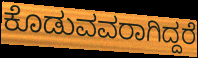
ಕೊಡುವವರಾಗಿದ್ದರೆ